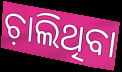
ଚ଼ାଲିଥିବା